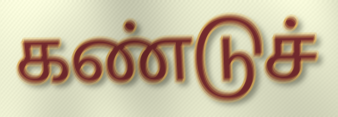
கண்டுச்